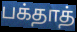
பக்தாத்